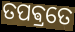
ତପଵ୍ରତେ